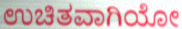
ಉಚಿತವಾಗಿಯೋ